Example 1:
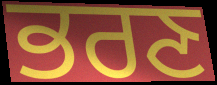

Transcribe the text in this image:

ਭਰਣ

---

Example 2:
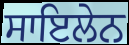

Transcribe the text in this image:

ਸਾਇਲੇਨ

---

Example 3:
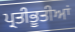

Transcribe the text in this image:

ਪ੍ਰਤੀਭੂਤੀਆਂ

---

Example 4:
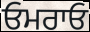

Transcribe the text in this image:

ਓਮਰਾਓ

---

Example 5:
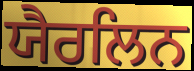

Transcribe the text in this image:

ਯੈਰਲਿਨ